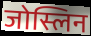
जोस्लिन